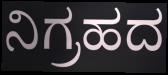
ನಿಗ್ರಹದ